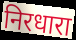
निरधारा